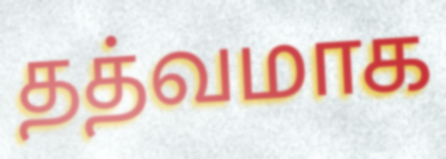
தத்வமாக